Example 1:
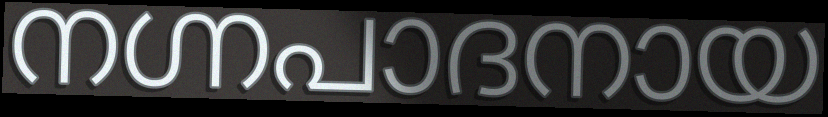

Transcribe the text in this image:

നഗ്നപാദനായ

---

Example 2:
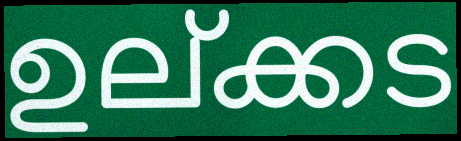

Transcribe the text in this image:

ഉല്ക്കട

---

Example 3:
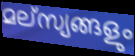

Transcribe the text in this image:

മല്സ്യങ്ങളും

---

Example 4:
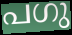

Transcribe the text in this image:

പഗു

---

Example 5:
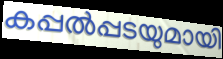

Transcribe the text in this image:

കപ്പൽപ്പടയുമായി